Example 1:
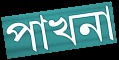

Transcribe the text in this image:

পাখনা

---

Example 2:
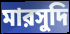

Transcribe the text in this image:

মারসুদি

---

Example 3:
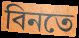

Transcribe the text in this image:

বিনতে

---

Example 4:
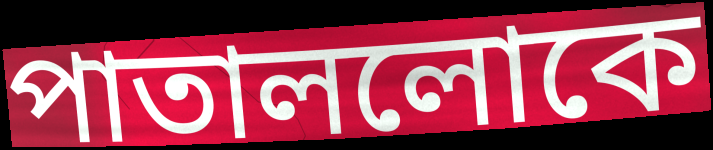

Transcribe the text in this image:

পাতাললোকে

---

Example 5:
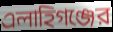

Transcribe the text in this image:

এলাহিগঞ্জের